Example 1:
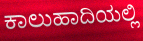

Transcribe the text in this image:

ಕಾಲುಹಾದಿಯಲ್ಲಿ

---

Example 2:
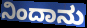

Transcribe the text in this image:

ನಿಂದಾನು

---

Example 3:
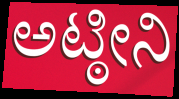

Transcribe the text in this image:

ಅಟ್ಠೀನಿ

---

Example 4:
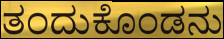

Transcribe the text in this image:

ತಂದುಕೊಂಡನು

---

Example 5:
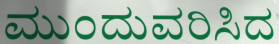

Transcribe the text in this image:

ಮುಂದುವರಿಸಿದ